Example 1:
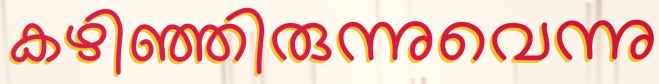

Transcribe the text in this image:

കഴിഞ്ഞിരുന്നുവെന്നു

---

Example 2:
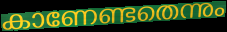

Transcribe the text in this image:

കാണേണ്ടതെന്നും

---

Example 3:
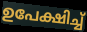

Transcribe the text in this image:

ഉപേക്ഷിച്ച്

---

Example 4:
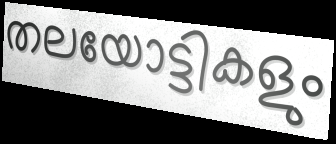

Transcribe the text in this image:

തലയോട്ടികളും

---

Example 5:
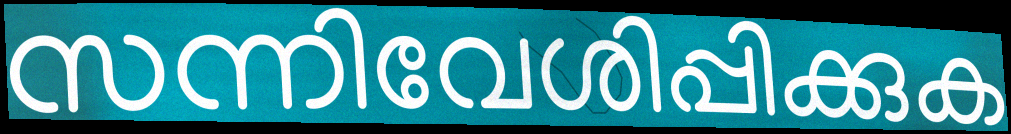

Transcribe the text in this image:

സന്നിവേശിപ്പിക്കുക